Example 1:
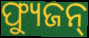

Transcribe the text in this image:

ଫ୍ୟୁଜନ୍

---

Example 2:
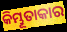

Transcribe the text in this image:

କିମ୍ଭୂତାକାର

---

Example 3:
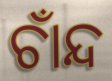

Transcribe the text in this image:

ଚାଁନ୍ଦ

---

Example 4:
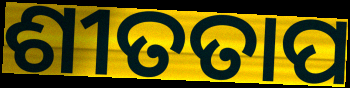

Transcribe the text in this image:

ଶୀତତାପ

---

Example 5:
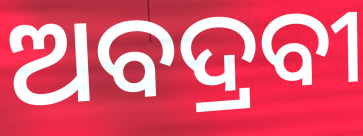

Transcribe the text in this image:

ଅବଦ୍ରବୀ